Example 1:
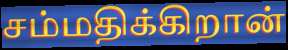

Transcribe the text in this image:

சம்மதிக்கிறான்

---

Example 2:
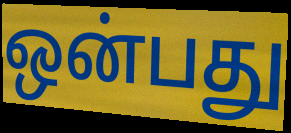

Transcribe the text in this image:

ஒன்பது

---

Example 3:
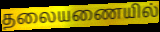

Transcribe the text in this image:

தலையணையில்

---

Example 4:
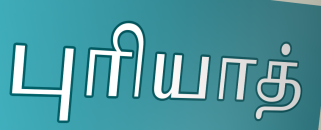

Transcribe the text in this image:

புரியாத்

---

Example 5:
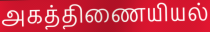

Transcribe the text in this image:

அகத்திணையியல்